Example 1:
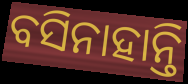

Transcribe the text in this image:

ବସିନାହାନ୍ତି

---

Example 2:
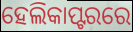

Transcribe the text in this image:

ହେଲିକାପ୍ଟରରେ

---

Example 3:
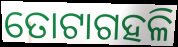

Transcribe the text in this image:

ତୋଟାଗହଳି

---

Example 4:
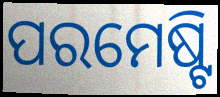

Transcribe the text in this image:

ପରମେଷ୍ଟି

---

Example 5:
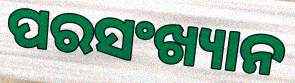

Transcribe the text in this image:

ପରସଂଖ୍ୟାନ